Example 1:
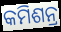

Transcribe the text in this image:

କମିଶନ୍ର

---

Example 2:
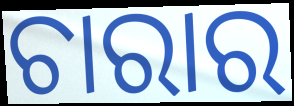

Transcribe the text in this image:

ଚାରାର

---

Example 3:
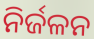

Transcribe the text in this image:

ନିର୍ଜଳନ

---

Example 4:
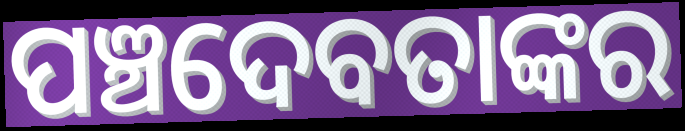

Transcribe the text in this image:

ପଞ୍ଚଦେବତାଙ୍କର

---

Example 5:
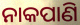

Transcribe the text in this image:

ନାକପାଣି